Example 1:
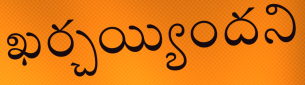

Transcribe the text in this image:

ఖర్చయ్యిందని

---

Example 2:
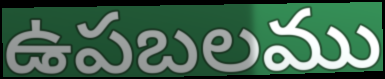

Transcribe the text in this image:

ఉపబలము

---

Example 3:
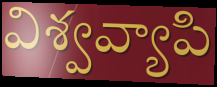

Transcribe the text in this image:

విశ్వవ్యాపి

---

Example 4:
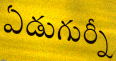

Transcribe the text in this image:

ఏడుగుర్నీ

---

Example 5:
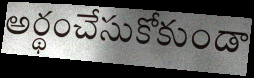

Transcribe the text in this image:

అర్థంచేసుకోకుండా